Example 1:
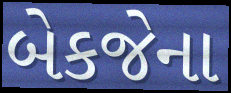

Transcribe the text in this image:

બેકજેના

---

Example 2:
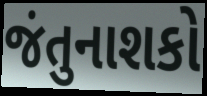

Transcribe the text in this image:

જંતુનાશકો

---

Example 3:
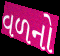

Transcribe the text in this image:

વળનો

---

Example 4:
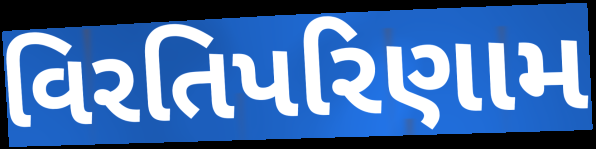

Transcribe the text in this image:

વિરતિપરિણામ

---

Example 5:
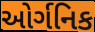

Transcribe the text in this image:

ઓર્ગનિક